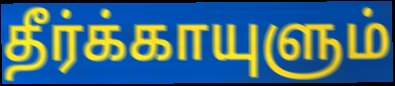
தீர்க்காயுளும்